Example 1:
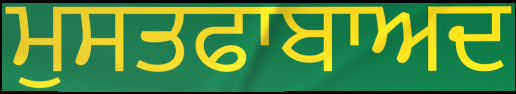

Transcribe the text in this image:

ਮੁਸਤਫਾਬਾਅਦ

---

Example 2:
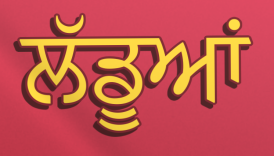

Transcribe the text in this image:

ਲੱਡੂਆਂ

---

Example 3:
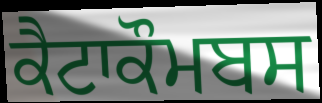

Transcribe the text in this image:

ਕੈਟਾਕੌਮਬਸ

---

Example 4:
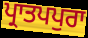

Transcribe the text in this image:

ਪ੍ਰਾਤਪਪੁਰਾ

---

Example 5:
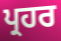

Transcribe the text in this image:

ਪ੍ਰਹਰ